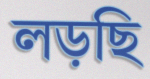
লড়ছি